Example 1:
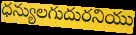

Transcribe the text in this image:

ధన్యులగుదురనియు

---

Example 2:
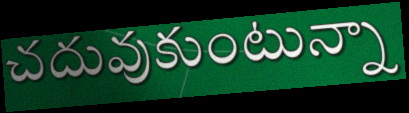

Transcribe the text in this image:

చదువుకుంటున్నా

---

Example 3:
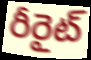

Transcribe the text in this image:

రీరైట్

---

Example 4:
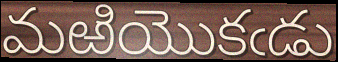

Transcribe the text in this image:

మఱియొకఁడు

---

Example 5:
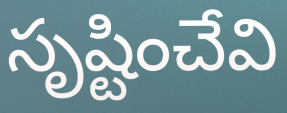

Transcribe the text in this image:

సృష్టించేవి